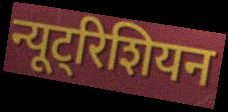
न्यूट्रिशियन